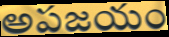
అపజయం